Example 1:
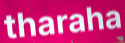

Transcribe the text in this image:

tharaha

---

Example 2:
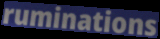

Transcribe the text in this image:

ruminations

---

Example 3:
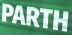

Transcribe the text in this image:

PARTH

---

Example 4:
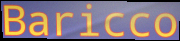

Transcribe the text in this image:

Baricco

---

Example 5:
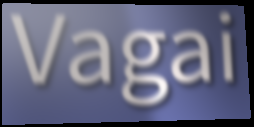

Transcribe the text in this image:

Vagai